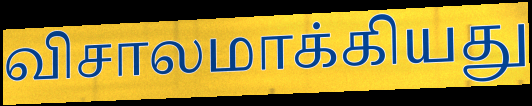
விசாலமாக்கியது